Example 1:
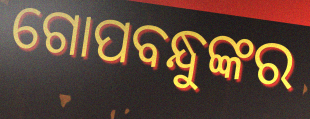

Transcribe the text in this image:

ଗୋପବନ୍ଧୁଙ୍କର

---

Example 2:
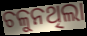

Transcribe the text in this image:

ଚଳୁନଥିଲା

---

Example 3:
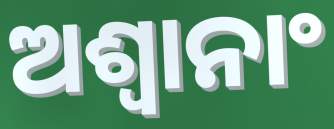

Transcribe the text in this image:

ଅଶ୍ଵାନାଂ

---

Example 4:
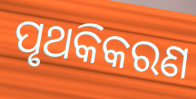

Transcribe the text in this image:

ପୃଥକିକରଣ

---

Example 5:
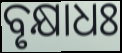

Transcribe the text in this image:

ବୃକ୍ଷାଧଃ